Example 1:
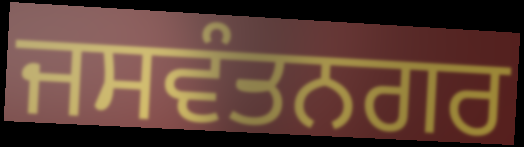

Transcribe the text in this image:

ਜਸਵੰਤਨਗਰ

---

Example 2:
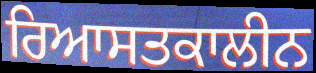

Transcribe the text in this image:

ਰਿਆਸਤਕਾਲੀਨ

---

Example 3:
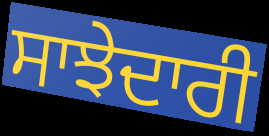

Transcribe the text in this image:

ਸਾਝੇਦਾਰੀ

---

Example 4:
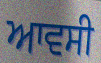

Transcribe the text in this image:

ਆਵਸੀ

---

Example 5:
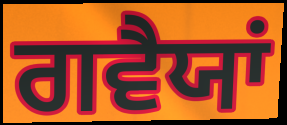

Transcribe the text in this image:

ਗਵੈਯਾਂ